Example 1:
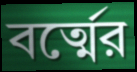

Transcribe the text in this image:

বর্ত্মের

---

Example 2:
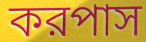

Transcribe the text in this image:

করপাস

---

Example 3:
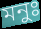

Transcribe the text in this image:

মনুঃ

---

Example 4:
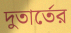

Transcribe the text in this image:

দুতার্তের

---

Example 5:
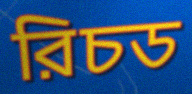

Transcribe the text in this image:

রিচড